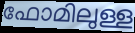
ഫോമിലുള്ള